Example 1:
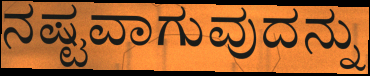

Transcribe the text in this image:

ನಷ್ಟವಾಗುವುದನ್ನು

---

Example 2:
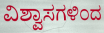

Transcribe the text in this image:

ವಿಶ್ವಾಸಗಳಿಂದ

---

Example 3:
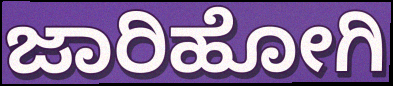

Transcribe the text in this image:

ಜಾರಿಹೋಗಿ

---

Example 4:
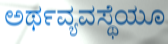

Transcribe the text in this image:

ಅರ್ಥವ್ಯವಸ್ಥೆಯೂ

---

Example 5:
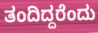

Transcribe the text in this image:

ತಂದಿದ್ದರೆಂದು